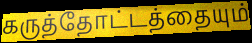
கருத்தோட்டத்தையும்